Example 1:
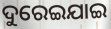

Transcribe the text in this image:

ଦୁରେଇଯାଇ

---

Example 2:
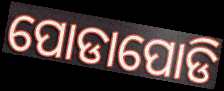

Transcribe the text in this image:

ପୋଡାପୋଡି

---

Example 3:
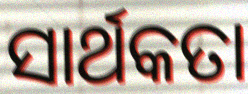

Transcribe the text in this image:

ସାର୍ଥକତା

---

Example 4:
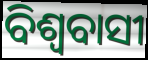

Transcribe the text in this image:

ବିଶ୍ୱବାସୀ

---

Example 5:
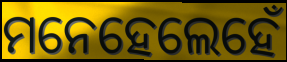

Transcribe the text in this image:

ମନେହେଲେହେଁ